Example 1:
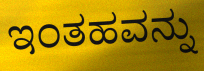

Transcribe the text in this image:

ಇಂತಹವನ್ನು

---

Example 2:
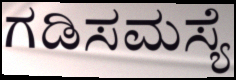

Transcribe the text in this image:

ಗಡಿಸಮಸ್ಯೆ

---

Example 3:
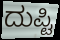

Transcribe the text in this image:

ದುಪ್ಟಿ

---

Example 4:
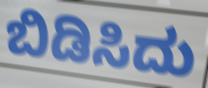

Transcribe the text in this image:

ಬಿಡಿಸಿದು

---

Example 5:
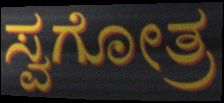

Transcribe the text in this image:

ಸ್ವಗೋತ್ರ